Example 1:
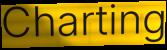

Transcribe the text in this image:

Charting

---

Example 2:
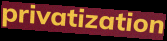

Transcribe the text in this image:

privatization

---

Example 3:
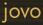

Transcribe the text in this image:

jovo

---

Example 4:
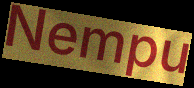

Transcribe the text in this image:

Nempu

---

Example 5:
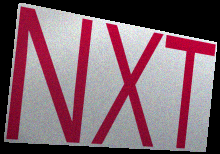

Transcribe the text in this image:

NXT